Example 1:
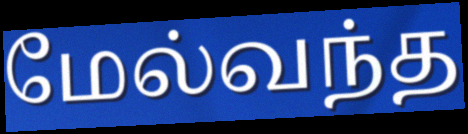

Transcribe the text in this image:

மேல்வந்த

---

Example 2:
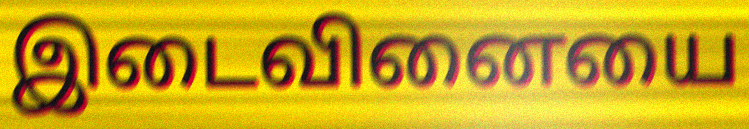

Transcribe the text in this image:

இடைவினையை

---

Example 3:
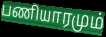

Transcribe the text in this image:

பணியாரமும்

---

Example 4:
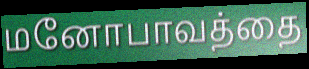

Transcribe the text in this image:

மனோபாவத்தை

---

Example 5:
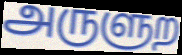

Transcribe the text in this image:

அருளுற